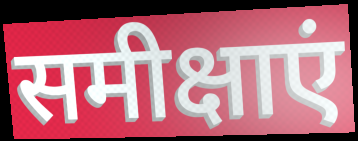
समीक्षाएं